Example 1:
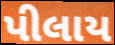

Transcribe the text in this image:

પીલાય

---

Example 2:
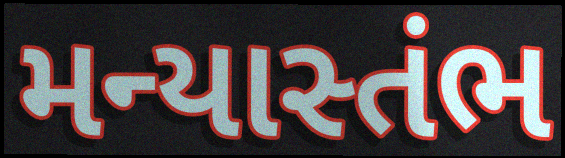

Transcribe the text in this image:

મન્યાસ્તંભ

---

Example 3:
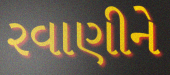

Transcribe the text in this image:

રવાણીને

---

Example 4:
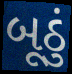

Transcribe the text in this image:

બૂઠું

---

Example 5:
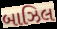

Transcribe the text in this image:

બાઝિલ